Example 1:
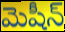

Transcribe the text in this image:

మెషీన్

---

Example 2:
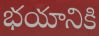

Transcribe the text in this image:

భయానికి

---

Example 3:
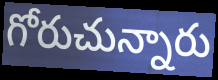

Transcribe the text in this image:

గోరుచున్నారు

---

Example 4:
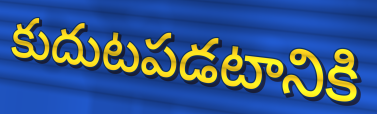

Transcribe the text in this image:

కుదుటపడటానికి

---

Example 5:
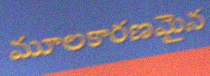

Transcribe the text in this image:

మూలకారణమైన